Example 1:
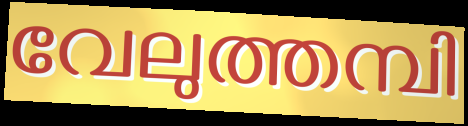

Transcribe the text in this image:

വേലുത്തമ്പി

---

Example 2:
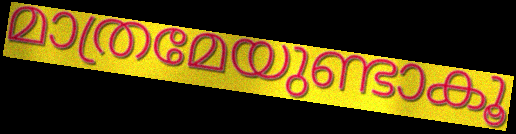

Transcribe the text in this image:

മാത്രമേയുണ്ടാകൂ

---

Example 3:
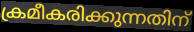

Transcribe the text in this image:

ക്രമീകരിക്കുന്നതിന്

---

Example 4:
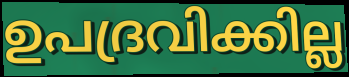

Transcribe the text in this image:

ഉപദ്രവിക്കില്ല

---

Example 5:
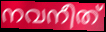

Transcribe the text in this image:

നവനീത്